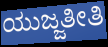
ಯುಜ್ಜತೀತಿ